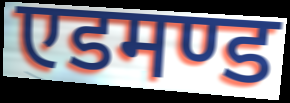
एडमण्ड